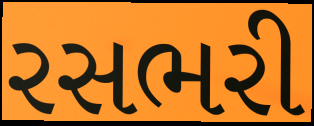
રસભરી